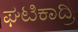
ಘಟಿಕಾದ್ರಿ